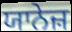
ਯਾਨੇਜ਼